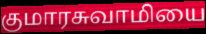
குமாரசுவாமியை